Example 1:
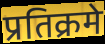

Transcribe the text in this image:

प्रतिक्रमे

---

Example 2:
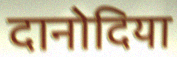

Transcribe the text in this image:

दानोदिया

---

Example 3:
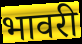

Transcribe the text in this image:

भावरी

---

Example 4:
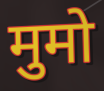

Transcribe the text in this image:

मुमो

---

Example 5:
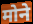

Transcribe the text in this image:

मोने